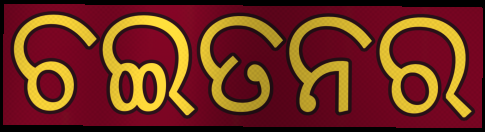
ଚଇତନର